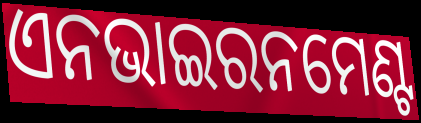
ଏନଭାଇରନମେଣ୍ଟ